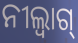
ନୀଲ୍ବାଗ୍